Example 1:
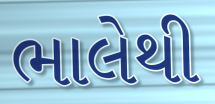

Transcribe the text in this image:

ભાલેથી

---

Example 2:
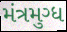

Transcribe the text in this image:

મંત્રમુગ્ધ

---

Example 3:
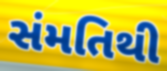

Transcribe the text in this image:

સંમતિથી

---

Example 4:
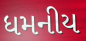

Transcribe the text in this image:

ધમનીય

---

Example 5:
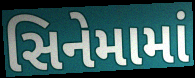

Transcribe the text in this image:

સિનેમામાં